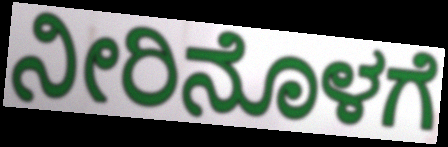
ನೀರಿನೊಳಗೆ